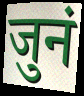
जुनं